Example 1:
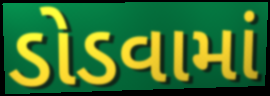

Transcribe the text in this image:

ડોડવામાં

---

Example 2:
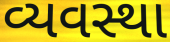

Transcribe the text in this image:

વ્યવસ્થા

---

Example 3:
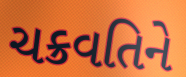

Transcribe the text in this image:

ચક્રવતિને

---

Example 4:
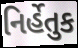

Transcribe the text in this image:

નિર્હેતુક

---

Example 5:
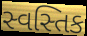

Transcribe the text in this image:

સ્વસ્તિક